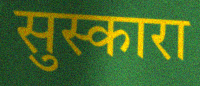
सुस्कारा